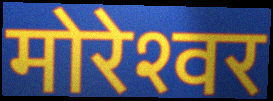
मोरेश्वर